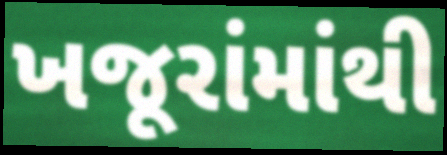
ખજૂરાંમાંથી